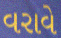
વરાવે